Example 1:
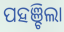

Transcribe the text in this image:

ପହଞ୍ଚିଲା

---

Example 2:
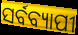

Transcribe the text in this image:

ସର୍ବବ୍ୟାପୀ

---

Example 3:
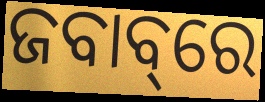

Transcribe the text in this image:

ଜବାବ୍‌ରେ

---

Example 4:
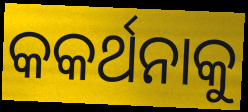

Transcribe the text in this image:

କକର୍ଥନାକୁ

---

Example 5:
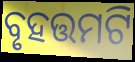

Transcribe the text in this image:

ବୃହତ୍ତମଟି